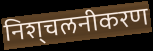
निश्चलनीकरण